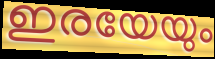
ഇരയേയും